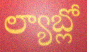
ల్యాబ్లో